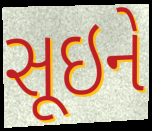
સૂઇને